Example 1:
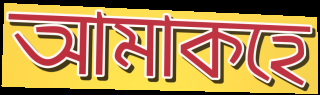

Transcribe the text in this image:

আমাকহে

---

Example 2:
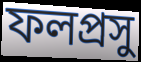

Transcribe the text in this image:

ফলপ্ৰসু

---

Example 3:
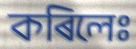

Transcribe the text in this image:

কৰিলেঃ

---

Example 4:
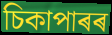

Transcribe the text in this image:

চিকাপাৰৰ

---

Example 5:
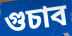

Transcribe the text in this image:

গুচাব